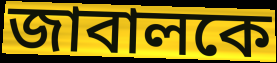
জাবালকে